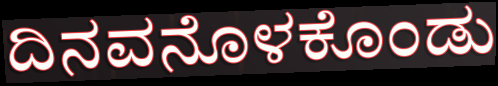
ದಿನವನೊಳಕೊಂಡು